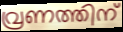
വ്രണത്തിന്